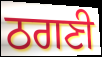
ਠਗਣੀ